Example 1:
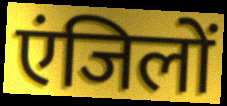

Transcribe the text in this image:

एंजिलों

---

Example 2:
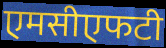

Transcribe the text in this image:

एमसीएफटी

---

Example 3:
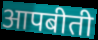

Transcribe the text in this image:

आपबीती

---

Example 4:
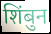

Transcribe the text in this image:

शिंबुन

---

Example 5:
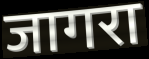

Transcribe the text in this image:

जागरा